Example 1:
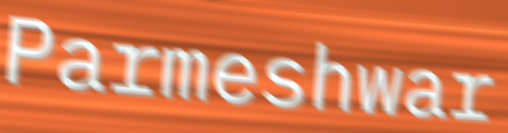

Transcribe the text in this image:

Parmeshwar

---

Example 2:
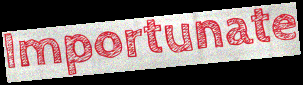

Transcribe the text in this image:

Importunate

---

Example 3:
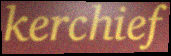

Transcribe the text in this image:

kerchief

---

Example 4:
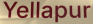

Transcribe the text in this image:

Yellapur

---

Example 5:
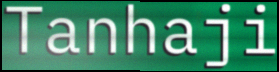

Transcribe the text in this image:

Tanhaji